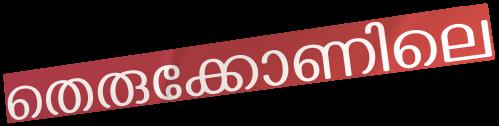
തെരുക്കോണിലെ